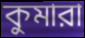
কুমারা